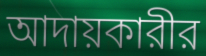
আদায়কারীর